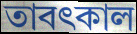
তাবৎকাল